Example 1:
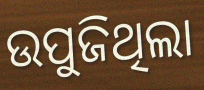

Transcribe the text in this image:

ଉପୁଜିଥିଲା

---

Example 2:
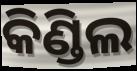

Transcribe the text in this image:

କିଣ୍ଡିଲ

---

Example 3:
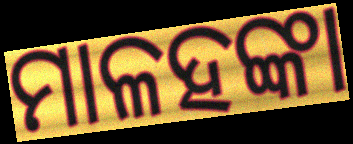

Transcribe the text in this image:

ମାଳହଙ୍କା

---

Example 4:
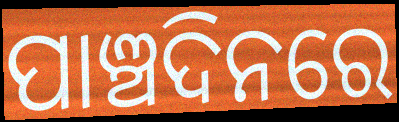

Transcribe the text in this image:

ପାଞ୍ଚଦିନରେ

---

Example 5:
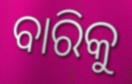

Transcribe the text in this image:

ବାରିକୁ